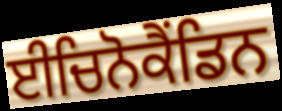
ਈਚਿਨੋਕੈਂਡਿਨ